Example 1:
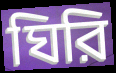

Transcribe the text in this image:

ঘিরি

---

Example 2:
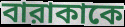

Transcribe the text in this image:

বারাকাকে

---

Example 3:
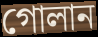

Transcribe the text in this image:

গোলান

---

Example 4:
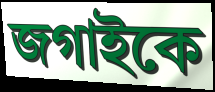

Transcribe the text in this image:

জগাইকে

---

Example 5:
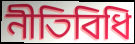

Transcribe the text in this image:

নীতিবিধি